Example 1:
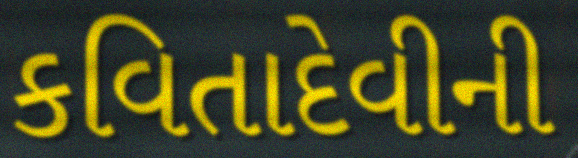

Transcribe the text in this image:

કવિતાદેવીની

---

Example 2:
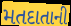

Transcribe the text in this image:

મતદાતાની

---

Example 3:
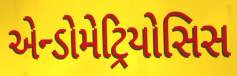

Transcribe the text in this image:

એન્ડોમેટ્રિયોસિસ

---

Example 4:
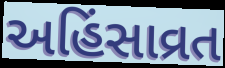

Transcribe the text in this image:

અહિંસાવ્રત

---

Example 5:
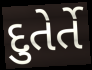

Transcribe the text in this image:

દુતેર્તે